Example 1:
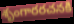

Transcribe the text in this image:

శృంగారరచనకి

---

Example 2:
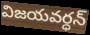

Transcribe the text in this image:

విజయవర్ధన్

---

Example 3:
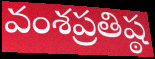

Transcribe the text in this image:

వంశప్రతిష్ఠ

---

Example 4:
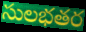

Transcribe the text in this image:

సులభతర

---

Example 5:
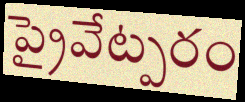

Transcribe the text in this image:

ప్రైవేట్పరం